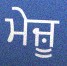
ਮੇਜ਼ੂ